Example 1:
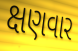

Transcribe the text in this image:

ક્ષણવાર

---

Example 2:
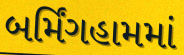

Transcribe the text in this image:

બર્મિંગહામમાં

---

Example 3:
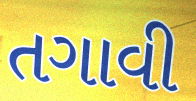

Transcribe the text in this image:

તગાવી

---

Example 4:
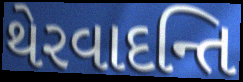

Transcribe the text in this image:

થેરવાદન્તિ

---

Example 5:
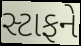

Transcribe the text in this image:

સ્ટાફને